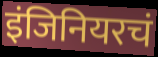
इंजिनियरचं